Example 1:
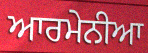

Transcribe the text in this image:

ਆਰਮੇਨੀਆ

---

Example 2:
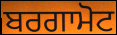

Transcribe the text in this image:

ਬਰਗਾਮੋਟ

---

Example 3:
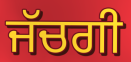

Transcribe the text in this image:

ਜੱਚਗੀ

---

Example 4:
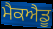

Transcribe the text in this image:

ਮੈਕਐਡੂ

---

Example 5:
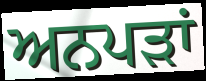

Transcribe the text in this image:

ਅਨਪੜਾਂ